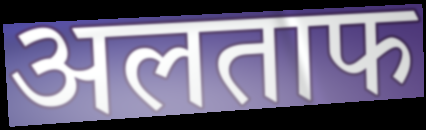
अलताफ